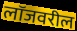
लॉजवरील